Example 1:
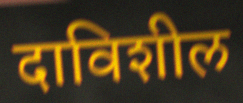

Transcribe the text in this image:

दाविशील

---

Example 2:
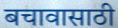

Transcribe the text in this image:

बचावासाठी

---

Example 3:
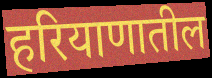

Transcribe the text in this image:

हरियाणातील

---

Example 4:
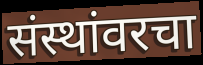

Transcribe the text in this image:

संस्थांवरचा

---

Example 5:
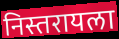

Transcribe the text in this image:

निस्तरायला